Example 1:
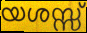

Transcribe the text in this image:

യശസ്സ്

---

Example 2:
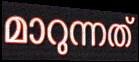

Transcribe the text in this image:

മാറുന്നത്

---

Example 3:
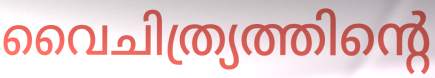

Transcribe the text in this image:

വൈചിത്ര്യത്തിന്റെ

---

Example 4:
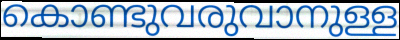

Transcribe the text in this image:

കൊണ്ടുവരുവാനുള്ള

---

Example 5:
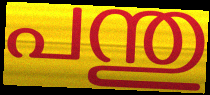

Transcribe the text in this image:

പന്തു